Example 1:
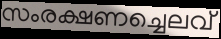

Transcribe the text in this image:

സംരക്ഷണച്ചെലവ്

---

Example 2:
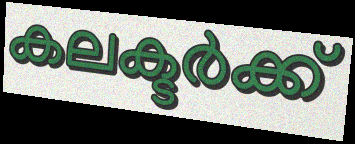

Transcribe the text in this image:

കലക്ടർക്ക്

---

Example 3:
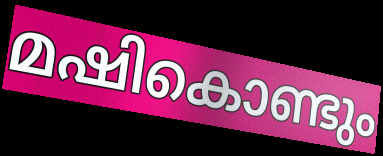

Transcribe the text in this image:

മഷികൊണ്ടും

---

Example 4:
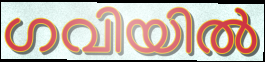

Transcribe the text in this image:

ഗവിയിൽ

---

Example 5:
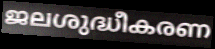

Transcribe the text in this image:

ജലശുദ്ധീകരണ